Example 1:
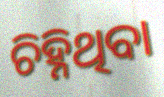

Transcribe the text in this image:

ଚିହ୍ନିଥିବା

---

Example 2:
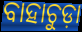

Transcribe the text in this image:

ବାହାଚୁଡ଼ା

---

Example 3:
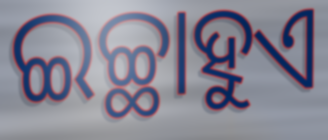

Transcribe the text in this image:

ଇଚ୍ଛାହୁଏ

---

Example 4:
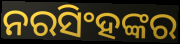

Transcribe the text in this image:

ନରସିଂହଙ୍କର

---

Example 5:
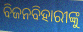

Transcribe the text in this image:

ବିଜନବିହାରୀଙ୍କୁ